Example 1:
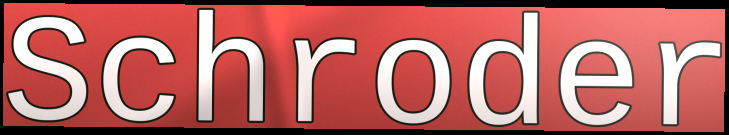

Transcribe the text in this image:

Schroder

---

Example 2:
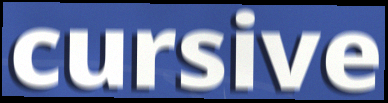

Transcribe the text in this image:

cursive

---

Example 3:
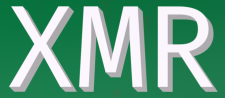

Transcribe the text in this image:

XMR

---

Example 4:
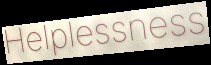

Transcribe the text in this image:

Helplessness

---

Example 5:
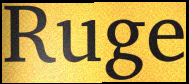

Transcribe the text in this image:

Ruge